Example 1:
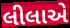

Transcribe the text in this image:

લીલાએ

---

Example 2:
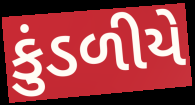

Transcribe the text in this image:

કુંડળીયે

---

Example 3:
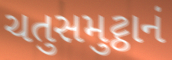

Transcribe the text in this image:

ચતુસમુટ્ઠાનં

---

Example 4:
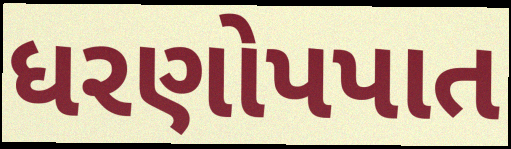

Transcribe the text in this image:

ધરણોપપાત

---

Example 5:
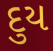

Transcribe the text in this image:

દુય